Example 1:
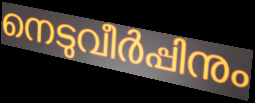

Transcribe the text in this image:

നെടുവീർപ്പിനും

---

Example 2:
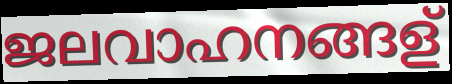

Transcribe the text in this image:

ജലവാഹനങ്ങള്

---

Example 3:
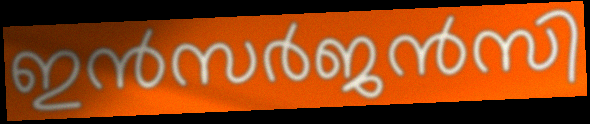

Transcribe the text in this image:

ഇൻസർജൻസി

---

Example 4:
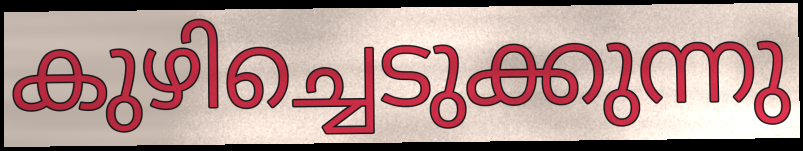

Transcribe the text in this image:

കുഴിച്ചെടുക്കുന്നു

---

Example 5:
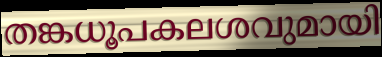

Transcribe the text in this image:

തങ്കധൂപകലശവുമായി